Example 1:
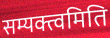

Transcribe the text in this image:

सम्यक्त्वमिति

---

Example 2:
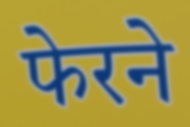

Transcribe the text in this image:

फेरने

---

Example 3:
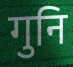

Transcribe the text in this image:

गुनि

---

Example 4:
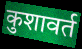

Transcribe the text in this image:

कुशावर्त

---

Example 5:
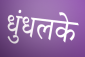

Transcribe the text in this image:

धुंधलके